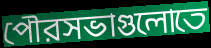
পৌরসভাগুলোতে